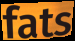
fats